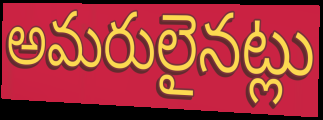
అమరులైనట్లు